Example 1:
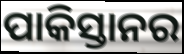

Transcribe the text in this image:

ପାକିସ୍ତାନର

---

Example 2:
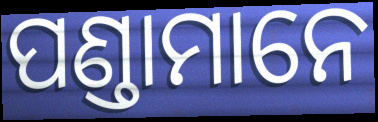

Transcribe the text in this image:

ପଣ୍ଡାମାନେ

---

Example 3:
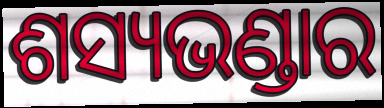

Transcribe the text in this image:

ଶସ୍ୟଭଣ୍ଡାର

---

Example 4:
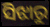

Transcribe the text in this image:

ସିଝାରୁ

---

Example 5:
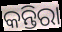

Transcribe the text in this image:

କନ୍ତିରା